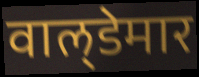
वाल्डेमार